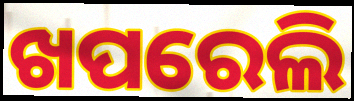
ଖପରେଲି